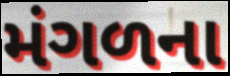
મંગળના